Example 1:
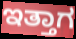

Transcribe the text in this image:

ಇತ್ತಾಗ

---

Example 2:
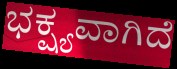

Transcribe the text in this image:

ಭಕ್ಷ್ಯವಾಗಿದೆ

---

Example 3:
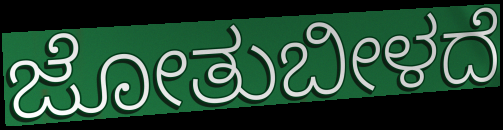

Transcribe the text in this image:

ಜೋತುಬೀಳದೆ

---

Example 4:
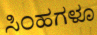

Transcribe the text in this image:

ಸಿಂಹಗಳೂ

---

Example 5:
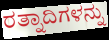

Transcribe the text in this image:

ರತ್ನಾದಿಗಳನ್ನು